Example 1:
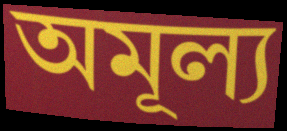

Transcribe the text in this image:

অমূল্য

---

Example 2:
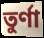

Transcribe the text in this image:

তুর্ণা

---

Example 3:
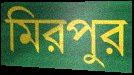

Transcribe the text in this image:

মিরপুর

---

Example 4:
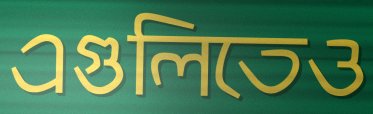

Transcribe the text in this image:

এগুলিতেও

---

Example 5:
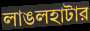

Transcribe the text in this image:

লাঙলহাটার